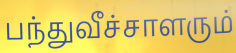
பந்துவீச்சாளரும்